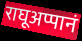
राघूअप्पानं